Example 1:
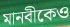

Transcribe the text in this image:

মানবীকেও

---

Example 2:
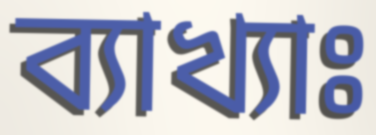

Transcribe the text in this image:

ব্যাখ্যাঃ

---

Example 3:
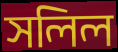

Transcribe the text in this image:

সলিল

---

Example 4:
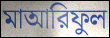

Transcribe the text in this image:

মাআরিফুল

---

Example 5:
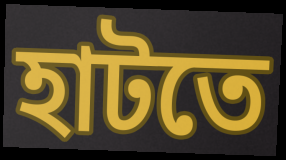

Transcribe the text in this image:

হাটতে